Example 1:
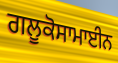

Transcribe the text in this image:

ਗਲੂਕੋਸਾਮਾਈਨ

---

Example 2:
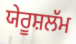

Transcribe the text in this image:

ਯੇਰੂਸ਼ਲੱਮ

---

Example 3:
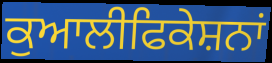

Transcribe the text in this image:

ਕੁਆਲੀਫਿਕੇਸ਼ਨਾਂ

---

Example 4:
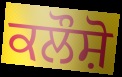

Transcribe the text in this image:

ਕਲੌਸ਼ੋ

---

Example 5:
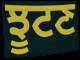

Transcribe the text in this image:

ਝੂਟਣ